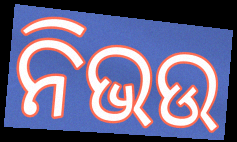
ନିଭଉ